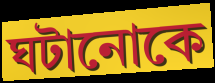
ঘটানোকে